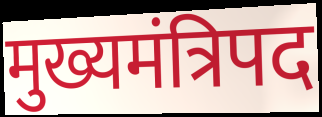
मुख्यमंत्रिपद